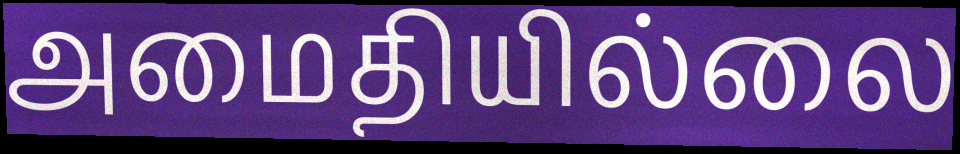
அமைதியில்லை